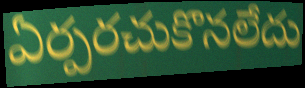
ఏర్పరచుకొనలేదు